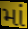
માં